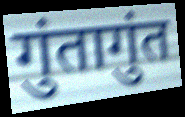
गुंतागुंत